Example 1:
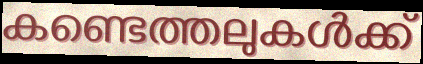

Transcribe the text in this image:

കണ്ടെത്തലുകൾക്ക്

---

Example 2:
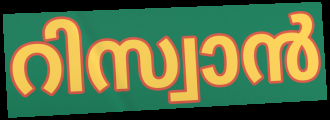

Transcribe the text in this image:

റിസ്വാൻ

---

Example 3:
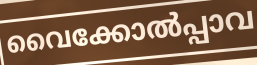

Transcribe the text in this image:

വൈക്കോൽപ്പാവ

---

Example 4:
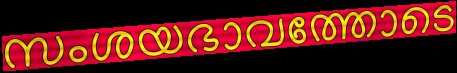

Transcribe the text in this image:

സംശയഭാവത്തോടെ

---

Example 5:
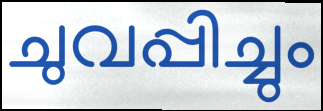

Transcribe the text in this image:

ചുവപ്പിച്ചും